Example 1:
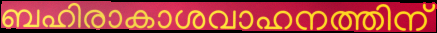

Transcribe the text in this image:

ബഹിരാകാശവാഹനത്തിന്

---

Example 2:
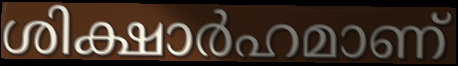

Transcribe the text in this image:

ശിക്ഷാർഹമാണ്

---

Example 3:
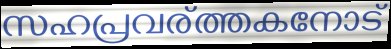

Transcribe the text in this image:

സഹപ്രവര്ത്തകനോട്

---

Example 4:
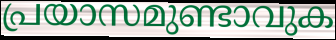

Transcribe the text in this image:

പ്രയാസമുണ്ടാവുക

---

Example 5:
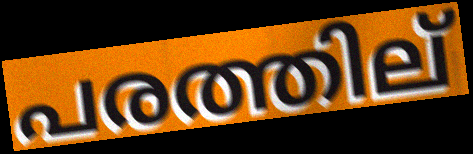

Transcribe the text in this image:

പരത്തില്